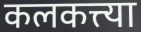
कलकत्त्या